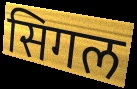
सिगल